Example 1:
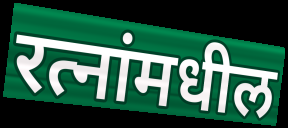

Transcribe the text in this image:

रत्नांमधील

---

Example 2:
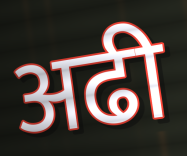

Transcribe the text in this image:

अढी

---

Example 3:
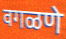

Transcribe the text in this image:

वगळणे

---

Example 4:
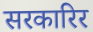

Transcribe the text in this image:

सरकारिर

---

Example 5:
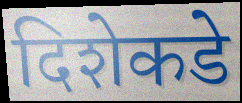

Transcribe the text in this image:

दिशेकडे